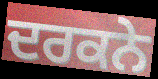
ਦਰਕਨੇ